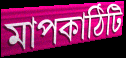
মাপকাঠিটি